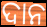
ଦାନ